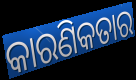
କାରଣିକତାର